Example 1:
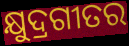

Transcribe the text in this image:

କ୍ଷୁଦ୍ରଗୀତର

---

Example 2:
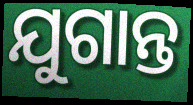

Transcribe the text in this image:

ଯୁଗାନ୍ତ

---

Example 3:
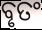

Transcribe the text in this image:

ବୃତଂ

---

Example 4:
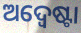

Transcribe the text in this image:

ଅଦ୍ୱେଷ୍ଟା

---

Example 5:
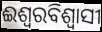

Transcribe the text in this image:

ଈଶ୍ବରବିଶ୍ବାସୀ